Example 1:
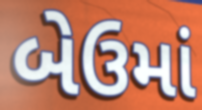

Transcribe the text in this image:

બેઉમાં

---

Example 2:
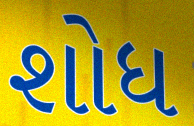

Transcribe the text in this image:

શોધ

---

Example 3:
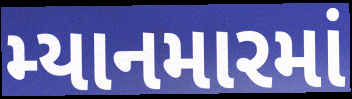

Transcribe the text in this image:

મ્યાનમારમાં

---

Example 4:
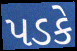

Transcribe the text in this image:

પડકે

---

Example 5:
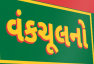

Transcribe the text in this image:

વંકચૂલનો